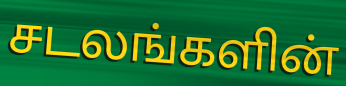
சடலங்களின்